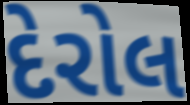
દેરોલ